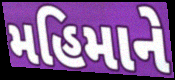
મહિમાને